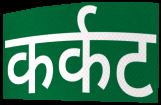
कर्कट